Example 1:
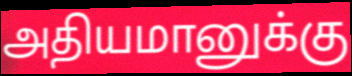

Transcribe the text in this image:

அதியமானுக்கு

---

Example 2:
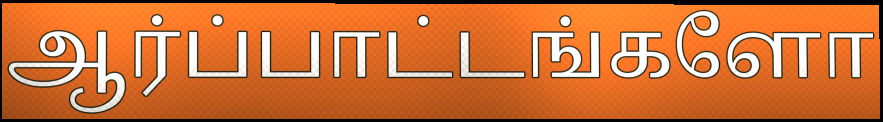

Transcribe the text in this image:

ஆர்ப்பாட்டங்களோ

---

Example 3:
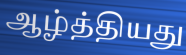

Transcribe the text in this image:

ஆழ்த்தியது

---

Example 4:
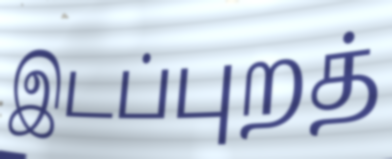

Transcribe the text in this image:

இடப்புறத்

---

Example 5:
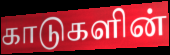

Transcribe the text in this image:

காடுகளின்